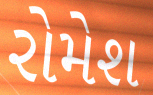
રોમેશ